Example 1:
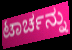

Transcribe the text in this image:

ಟಾರ್ಚನ್ನು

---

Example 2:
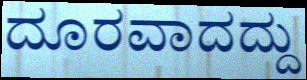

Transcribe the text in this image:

ದೂರವಾದದ್ದು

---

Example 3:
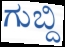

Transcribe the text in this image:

ಗುಬ್ದಿ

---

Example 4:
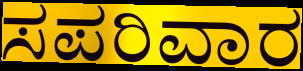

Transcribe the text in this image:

ಸಪರಿವಾರ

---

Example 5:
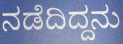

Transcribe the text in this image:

ನಡೆದಿದ್ದನು